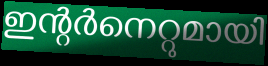
ഇന്റർനെറ്റുമായി